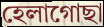
হেলাগোছা